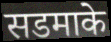
सडमाके